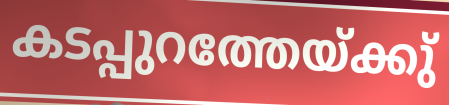
കടപ്പുറത്തേയ്ക്കു്